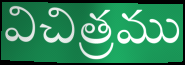
విచిత్రము